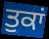
ਤੁਕਾਂ